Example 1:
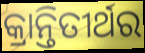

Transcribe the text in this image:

କ୍ରାନ୍ତିତୀର୍ଥର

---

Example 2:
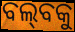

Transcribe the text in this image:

ବଲ୍‌ବକୁ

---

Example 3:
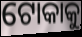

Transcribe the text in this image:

ଟୋକାକୁ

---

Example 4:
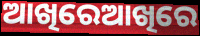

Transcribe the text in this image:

ଆଖିରେଆଖିରେ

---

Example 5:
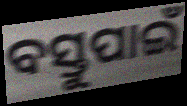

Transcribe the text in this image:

ବସ୍ତୁପାଇଁ